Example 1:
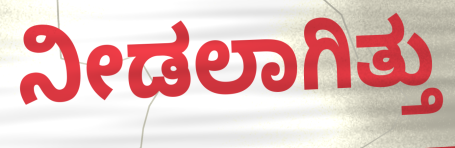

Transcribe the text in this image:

ನೀಡಲಾಗಿತ್ತು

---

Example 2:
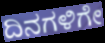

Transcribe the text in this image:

ದಿನಗಳಿಗೇ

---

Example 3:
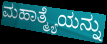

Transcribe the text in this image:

ಮಹಾತ್ಮ್ಯೆಯನ್ನು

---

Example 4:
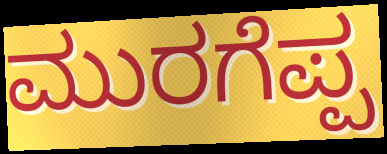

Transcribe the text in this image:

ಮುರಗೆಪ್ಪ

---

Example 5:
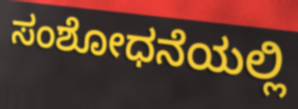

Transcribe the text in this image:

ಸಂಶೋಧನೆಯಲ್ಲಿ